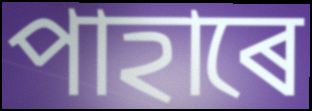
পাহাৰে